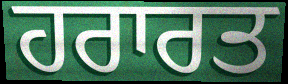
ਹਰਾਰਤ